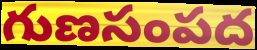
గుణసంపద